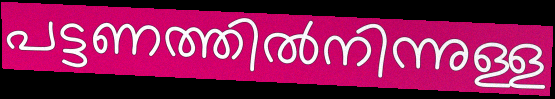
പട്ടണത്തിൽനിന്നുള്ള